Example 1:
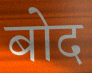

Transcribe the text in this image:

बोद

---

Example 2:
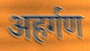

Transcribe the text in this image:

अहर्गण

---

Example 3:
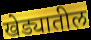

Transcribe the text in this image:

खेड्यातील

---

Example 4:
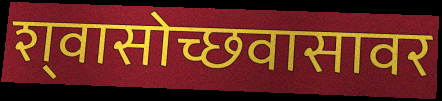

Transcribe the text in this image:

श्वासोच्छवासावर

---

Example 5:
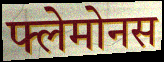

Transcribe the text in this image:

फ्लेमोनस